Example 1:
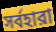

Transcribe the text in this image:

সর্বহারা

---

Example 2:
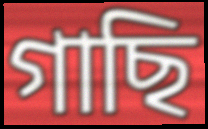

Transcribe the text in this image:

গাছি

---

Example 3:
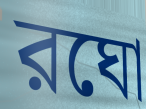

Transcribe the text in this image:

রঘো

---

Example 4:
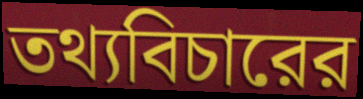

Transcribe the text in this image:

তথ্যবিচারের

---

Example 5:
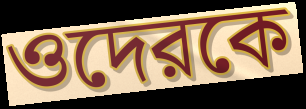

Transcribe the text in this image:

ওদেরকে